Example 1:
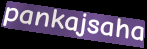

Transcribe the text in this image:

pankajsaha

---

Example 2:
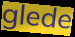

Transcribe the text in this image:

glede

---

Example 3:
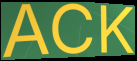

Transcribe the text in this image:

ACK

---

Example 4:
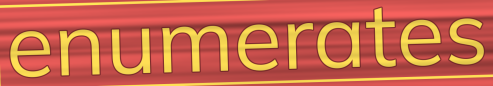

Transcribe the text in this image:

enumerates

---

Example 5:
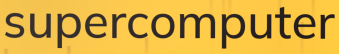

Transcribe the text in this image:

supercomputer